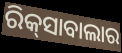
ରିକ୍‌ସାବାଲାର